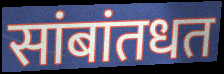
सांबांतधत